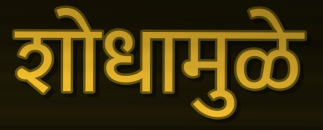
शोधामुळे